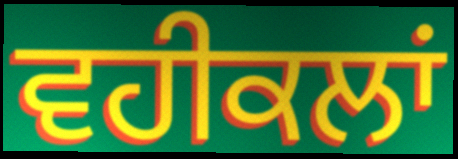
ਵਹੀਕਲਾਂ